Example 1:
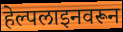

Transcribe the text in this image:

हेल्पलाइनवरून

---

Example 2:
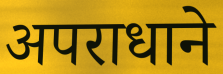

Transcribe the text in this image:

अपराधाने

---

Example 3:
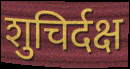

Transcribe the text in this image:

शुचिर्दक्ष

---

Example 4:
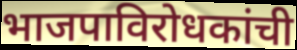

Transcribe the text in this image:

भाजपाविरोधकांची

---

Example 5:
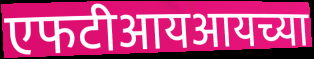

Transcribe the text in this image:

एफटीआयआयच्या